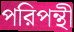
পরিপন্থী